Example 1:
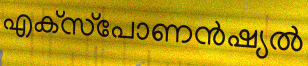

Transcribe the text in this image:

എക്‌സ്‌പോണൻഷ്യൽ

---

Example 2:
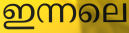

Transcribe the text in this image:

ഇന്നലെ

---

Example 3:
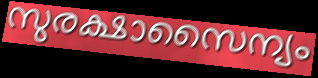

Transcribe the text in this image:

സുരക്ഷാസൈന്യം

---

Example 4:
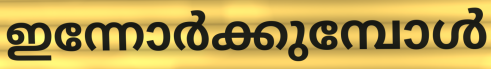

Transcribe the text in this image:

ഇന്നോർക്കുമ്പോൾ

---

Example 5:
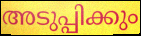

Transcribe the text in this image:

അടുപ്പിക്കും